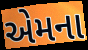
એમના